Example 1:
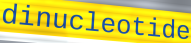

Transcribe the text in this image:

dinucleotide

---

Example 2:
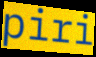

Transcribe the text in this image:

piri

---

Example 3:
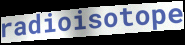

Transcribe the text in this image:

radioisotope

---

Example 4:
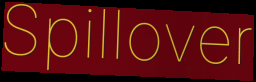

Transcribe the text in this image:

Spillover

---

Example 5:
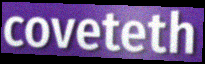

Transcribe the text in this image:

coveteth